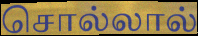
சொல்லால்